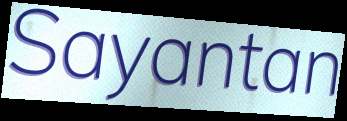
Sayantan